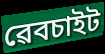
ৱেবচাইট